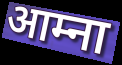
आम्ना